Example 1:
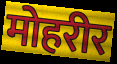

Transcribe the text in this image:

मोहरीर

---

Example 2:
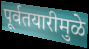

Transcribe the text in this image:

पूर्वतयारीमुळे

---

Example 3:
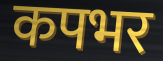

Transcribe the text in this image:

कपभर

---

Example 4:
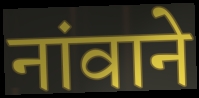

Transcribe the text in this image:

नांवाने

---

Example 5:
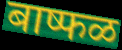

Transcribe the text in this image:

बाष्फळ